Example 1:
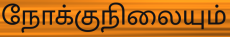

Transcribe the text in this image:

நோக்குநிலையும்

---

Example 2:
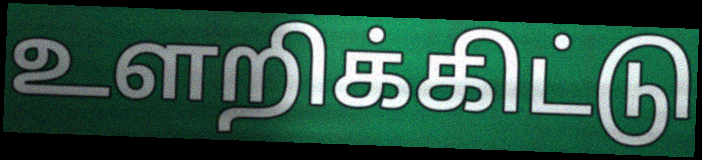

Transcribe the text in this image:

உளறிக்கிட்டு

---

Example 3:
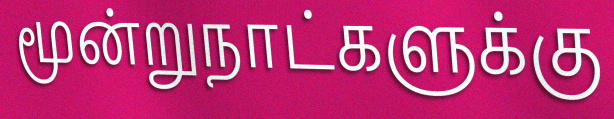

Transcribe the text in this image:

மூன்றுநாட்களுக்கு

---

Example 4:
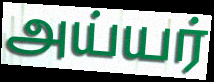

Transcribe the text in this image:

அய்யர்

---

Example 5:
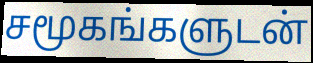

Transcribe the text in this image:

சமூகங்களுடன்